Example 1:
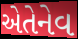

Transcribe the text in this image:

એતેનેવ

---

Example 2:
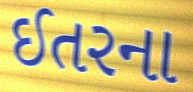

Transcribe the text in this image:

ઈતરના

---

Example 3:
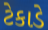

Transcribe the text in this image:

ટેકાડે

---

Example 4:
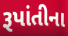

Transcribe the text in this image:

રૂપાંતીના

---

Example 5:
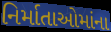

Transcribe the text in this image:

નિર્માતાઓમાંના